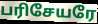
பரிசேயரே